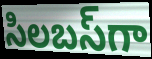
సిలబస్‌గా